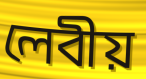
লেবীয়